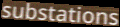
substations